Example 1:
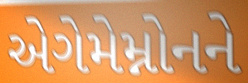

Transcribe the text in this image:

એગેમેમ્નોનને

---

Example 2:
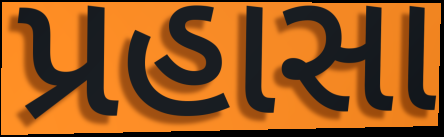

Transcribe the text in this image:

પ્રહાસા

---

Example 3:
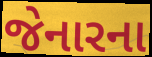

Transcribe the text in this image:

જેનારના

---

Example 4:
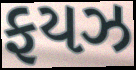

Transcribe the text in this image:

ફયઝ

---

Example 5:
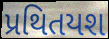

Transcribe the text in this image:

પ્રથિતયશ